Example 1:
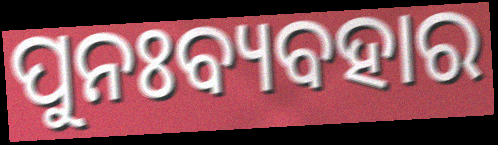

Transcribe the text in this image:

ପୁନଃବ୍ୟବହାର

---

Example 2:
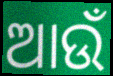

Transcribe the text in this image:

ଆଉଁ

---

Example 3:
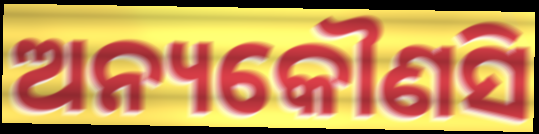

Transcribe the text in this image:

ଅନ୍ୟକୌଣସି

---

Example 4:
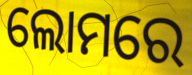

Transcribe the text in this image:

ଲୋମରେ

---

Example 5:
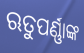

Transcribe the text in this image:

ଋତୁପର୍ଣ୍ଣାଙ୍କ